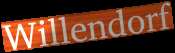
Willendorf